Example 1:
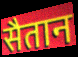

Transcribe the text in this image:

सैतान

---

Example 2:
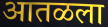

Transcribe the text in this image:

आतळला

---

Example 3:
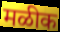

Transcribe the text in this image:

मळीक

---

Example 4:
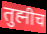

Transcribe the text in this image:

तुह्मीच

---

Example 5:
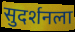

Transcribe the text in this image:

सुदर्शनला